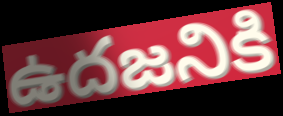
ఉదజనికి